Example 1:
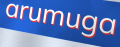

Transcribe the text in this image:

arumuga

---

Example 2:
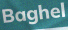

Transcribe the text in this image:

Baghel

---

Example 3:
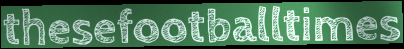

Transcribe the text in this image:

thesefootballtimes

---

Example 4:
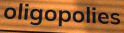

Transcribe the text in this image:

oligopolies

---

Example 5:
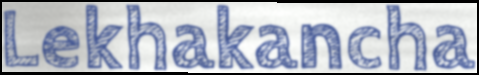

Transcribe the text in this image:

Lekhakancha